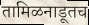
तामिळनाडूतच